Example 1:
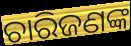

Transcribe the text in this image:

ଚାରିଜଣଙ୍କ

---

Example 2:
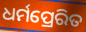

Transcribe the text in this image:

ଧର୍ମପ୍ରେରିତ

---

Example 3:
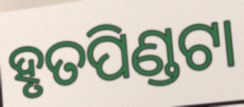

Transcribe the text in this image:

ହୃତପିଣ୍ଡଟା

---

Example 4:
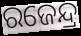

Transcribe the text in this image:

ରଜେନ୍ଦ୍ର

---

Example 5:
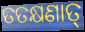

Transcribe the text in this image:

ତତକ୍ଷଣାତ୍